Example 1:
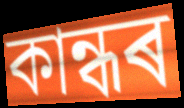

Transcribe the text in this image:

কান্ধৰ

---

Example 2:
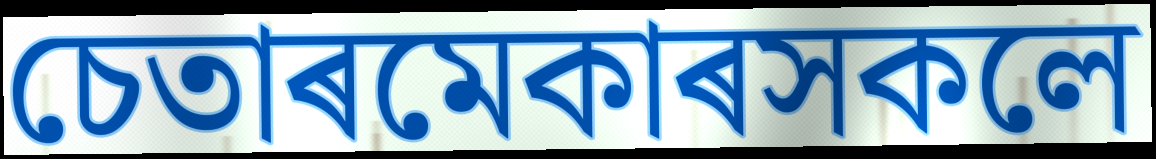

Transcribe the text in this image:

চেতাৰমেকাৰসকলে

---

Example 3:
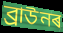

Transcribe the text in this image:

ব্ৰাউনৰ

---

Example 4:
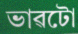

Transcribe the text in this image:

ভাৱটো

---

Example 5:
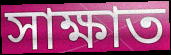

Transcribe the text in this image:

সাক্ষাত